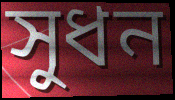
সুধন